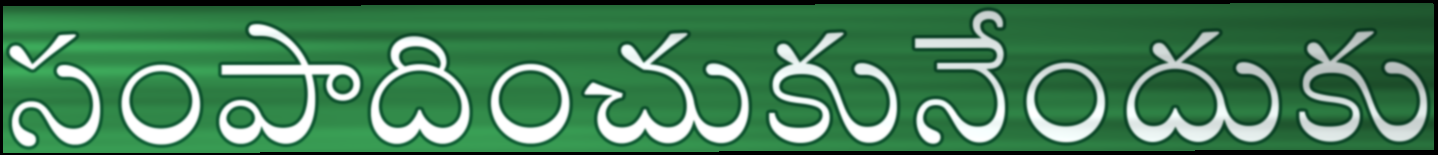
సంపాదించుకునేందుకు